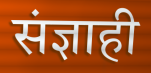
संज्ञाही